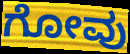
ಗೋವು